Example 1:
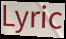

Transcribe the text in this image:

Lyric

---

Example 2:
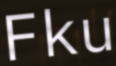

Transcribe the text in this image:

Fku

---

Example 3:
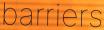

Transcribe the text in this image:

barriers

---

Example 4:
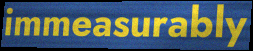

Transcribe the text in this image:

immeasurably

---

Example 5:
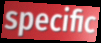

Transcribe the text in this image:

specific